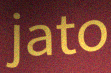
jato